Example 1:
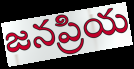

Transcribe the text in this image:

జనప్రియ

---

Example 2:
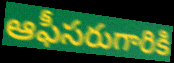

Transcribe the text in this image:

ఆఫీసరుగారికి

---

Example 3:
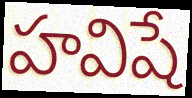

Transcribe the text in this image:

హవిషే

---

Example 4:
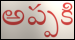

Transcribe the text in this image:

అప్పకి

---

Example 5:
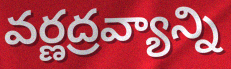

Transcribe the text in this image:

వర్ణద్రవ్యాన్ని